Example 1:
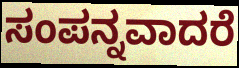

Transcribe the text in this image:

ಸಂಪನ್ನವಾದರೆ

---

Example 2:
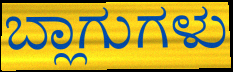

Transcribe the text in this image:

ಬ್ಲಾಗುಗಳು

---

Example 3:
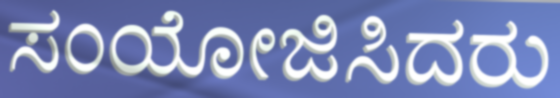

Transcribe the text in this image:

ಸಂಯೋಜಿಸಿದರು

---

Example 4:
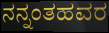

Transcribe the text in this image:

ನನ್ನಂತಹವರ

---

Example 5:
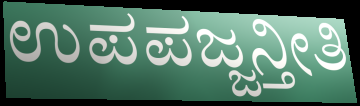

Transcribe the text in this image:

ಉಪಪಜ್ಜನ್ತೀತಿ